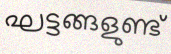
ഘട്ടങ്ങളുണ്ട്